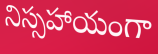
నిస్సహాయంగా